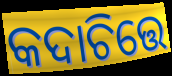
କଦାଚିତ୍ତେ